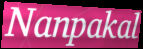
Nanpakal